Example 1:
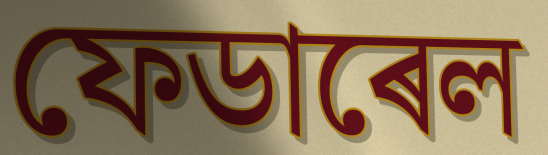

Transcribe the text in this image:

ফেডাৰেল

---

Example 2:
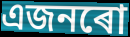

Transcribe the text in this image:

এজনৰো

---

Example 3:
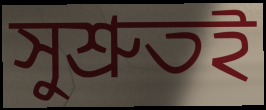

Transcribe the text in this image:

সুশ্ৰুতই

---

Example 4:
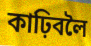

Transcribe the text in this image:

কাঢ়িবলৈ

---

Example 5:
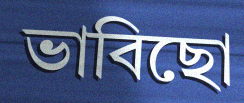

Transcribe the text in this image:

ভাবিছো